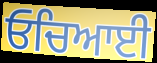
ਓਚਿਆਈ